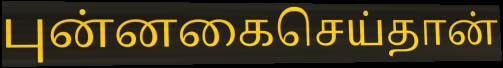
புன்னகைசெய்தான்